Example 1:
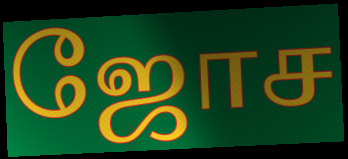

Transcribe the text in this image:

ஜோச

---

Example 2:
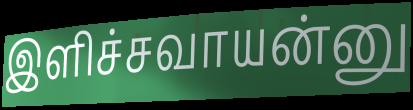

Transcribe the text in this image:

இளிச்சவாயன்னு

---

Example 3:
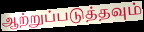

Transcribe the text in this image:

ஆற்றுப்படுத்தவும்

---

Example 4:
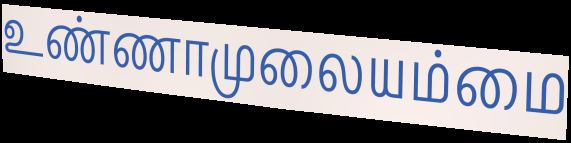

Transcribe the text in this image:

உண்ணாமுலையம்மை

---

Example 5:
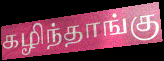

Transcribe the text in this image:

கழிந்தாங்கு